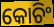
କୋଚିଂ